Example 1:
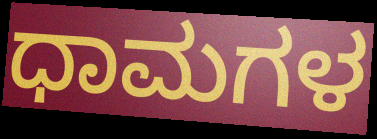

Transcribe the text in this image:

ಧಾಮಗಳ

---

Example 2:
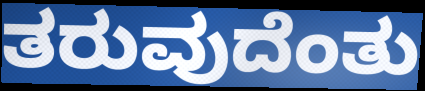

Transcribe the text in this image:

ತರುವುದೆಂತು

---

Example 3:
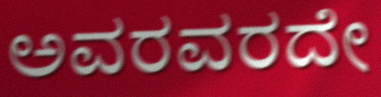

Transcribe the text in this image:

ಅವರವರದೇ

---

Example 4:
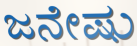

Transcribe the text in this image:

ಜನೇಷು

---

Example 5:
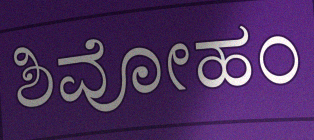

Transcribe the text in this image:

ಶಿವೋಹಂ